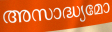
അസാദ്ധ്യമോ